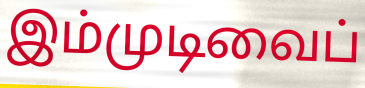
இம்முடிவைப்